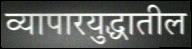
व्यापारयुद्धातील